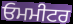
ਓਮਮੀਟਰ